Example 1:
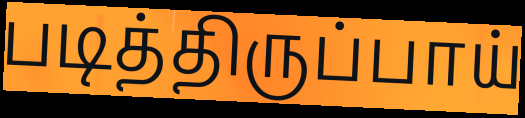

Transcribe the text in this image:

படித்திருப்பாய்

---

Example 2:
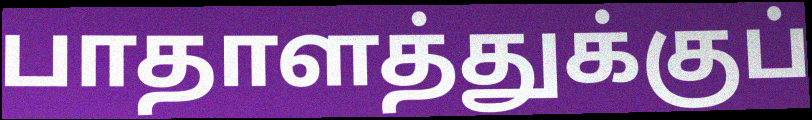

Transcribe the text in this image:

பாதாளத்துக்குப்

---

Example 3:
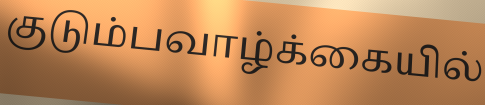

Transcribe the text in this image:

குடும்பவாழ்க்கையில்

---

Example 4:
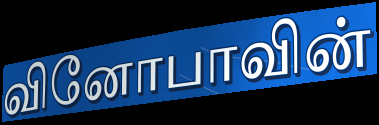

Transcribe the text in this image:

வினோபாவின்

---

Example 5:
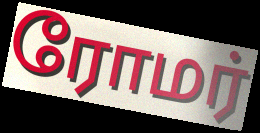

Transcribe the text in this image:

ரோமர்